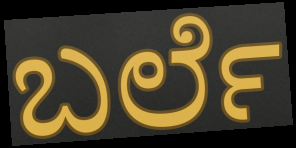
ಬರ್ಲೆ